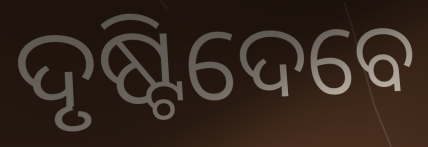
ଦୃଷ୍ଟିଦେବେ